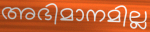
അഭിമാനമില്ല